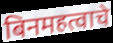
बिनमहत्वाचे